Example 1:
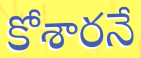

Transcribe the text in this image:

కోశారనే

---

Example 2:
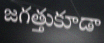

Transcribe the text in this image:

జగత్తుకూడా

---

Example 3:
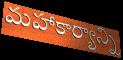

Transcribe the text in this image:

మహాకార్యాన్ని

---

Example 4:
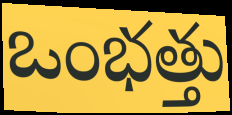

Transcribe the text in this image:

ఒంభత్తు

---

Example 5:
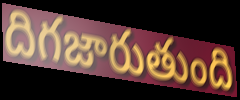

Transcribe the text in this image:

దిగజారుతుంది